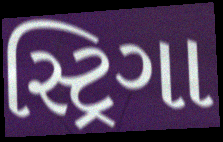
સ્ટ્રિગા